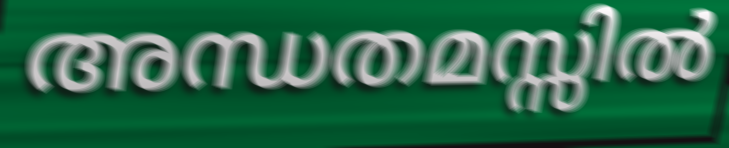
അന്ധതമസ്സിൽ